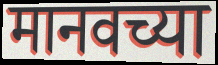
मानवच्या